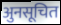
अुनसूचित